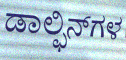
ಡಾಲ್ಫಿನ್‌ಗಳ